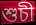
শুচী